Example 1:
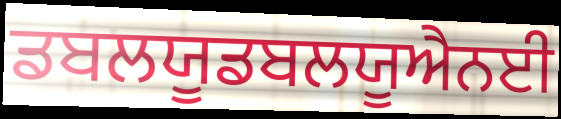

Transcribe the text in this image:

ਡਬਲਯੂਡਬਲਯੂਐਨਈ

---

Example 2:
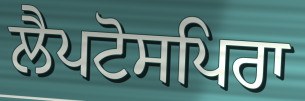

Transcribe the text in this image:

ਲੈਪਟੋਸਪਿਰਾ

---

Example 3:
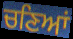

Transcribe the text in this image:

ਚਣਿਆਂ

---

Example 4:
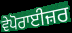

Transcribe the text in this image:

ਵੇਪੋਰਾਈਜ਼ਰ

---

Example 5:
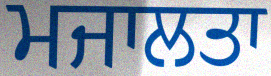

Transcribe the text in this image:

ਮਜਾਲਤਾ